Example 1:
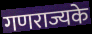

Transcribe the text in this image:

गणराज्यके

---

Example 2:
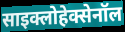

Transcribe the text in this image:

साइक्लोहेक्सेनॉल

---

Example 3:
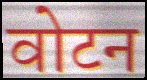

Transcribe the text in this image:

वोटन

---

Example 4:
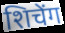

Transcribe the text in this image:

शिचेंग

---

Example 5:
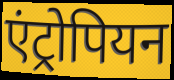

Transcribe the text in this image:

एंट्रोपियन